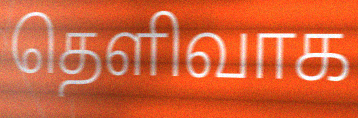
தெளிவாக